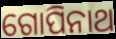
ଗୋପିନାଥ